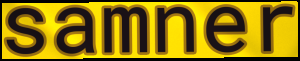
samner